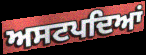
ਅਸਟਪਦਿਆਂ